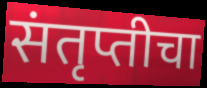
संतृप्तीचा